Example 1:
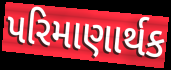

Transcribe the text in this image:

પરિમાણાર્થક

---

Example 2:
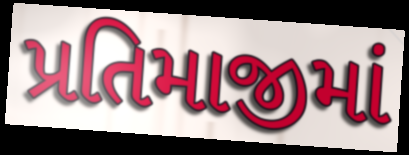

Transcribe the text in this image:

પ્રતિમાજીમાં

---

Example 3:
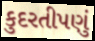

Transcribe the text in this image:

કુદરતીપણું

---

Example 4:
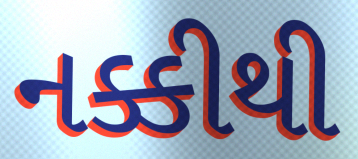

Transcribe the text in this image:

નક્કીથી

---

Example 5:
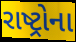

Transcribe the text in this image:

રાષ્ટ્રોના